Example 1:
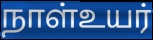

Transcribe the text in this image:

நாள்உயர்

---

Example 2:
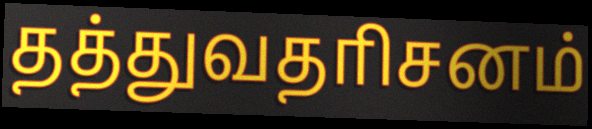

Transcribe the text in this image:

தத்துவதரிசனம்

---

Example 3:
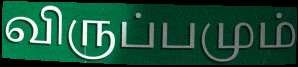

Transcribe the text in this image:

விருப்பமும்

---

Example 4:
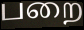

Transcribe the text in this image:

பறை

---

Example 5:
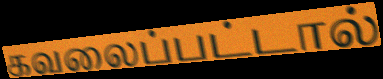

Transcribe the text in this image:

கவலைப்பட்டால்